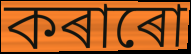
কৰাৰো